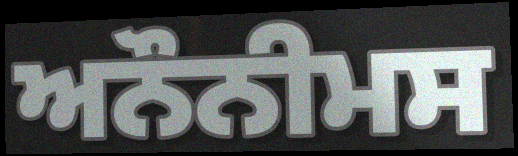
ਅਨੌਨੀਮਸ